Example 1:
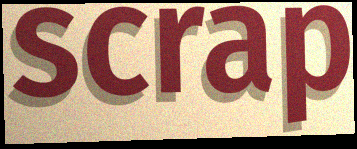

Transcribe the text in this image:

scrap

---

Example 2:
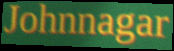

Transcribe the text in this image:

Johnnagar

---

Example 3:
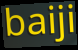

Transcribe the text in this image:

baiji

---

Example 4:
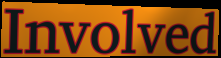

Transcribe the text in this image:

Involved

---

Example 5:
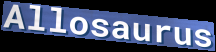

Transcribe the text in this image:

Allosaurus